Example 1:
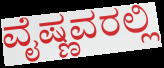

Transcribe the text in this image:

ವೈಷ್ಣವರಲ್ಲಿ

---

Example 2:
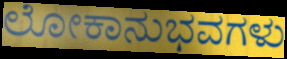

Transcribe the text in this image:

ಲೋಕಾನುಭವಗಳು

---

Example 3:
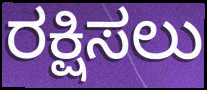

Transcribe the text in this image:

ರಕ್ಷಿಸಲು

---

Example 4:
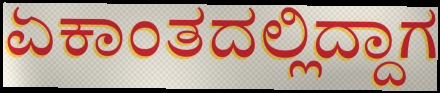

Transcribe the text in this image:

ಏಕಾಂತದಲ್ಲಿದ್ದಾಗ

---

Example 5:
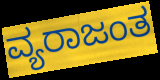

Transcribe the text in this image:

ವ್ಯರಾಜಂತ